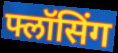
फ्लॉसिंग